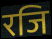
रजि